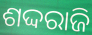
ଶଦ୍ଦରାଜି